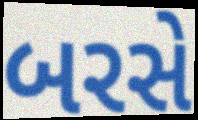
બરસે